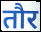
तौर